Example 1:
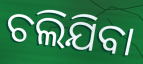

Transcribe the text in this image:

ଚଲିଯିବା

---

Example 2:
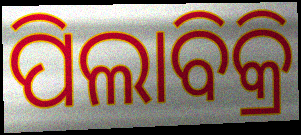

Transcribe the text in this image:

ପିଲାବିକ୍ରି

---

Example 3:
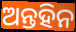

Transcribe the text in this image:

ଅନ୍ତହିନ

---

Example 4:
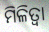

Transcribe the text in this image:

ମିଳିତ୍ଵା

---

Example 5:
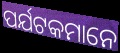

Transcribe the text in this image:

ପର୍ଯଟକମାନେ